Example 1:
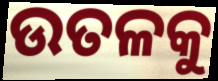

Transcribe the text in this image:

ଉତଳକୁ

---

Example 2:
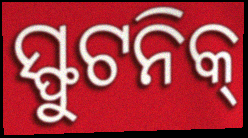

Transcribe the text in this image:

ସ୍ଫୁଟନିକ୍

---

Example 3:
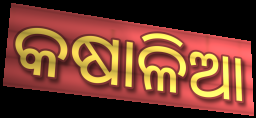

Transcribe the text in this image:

କଷାଳିଆ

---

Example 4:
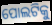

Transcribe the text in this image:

ପୋଲଟିକୁ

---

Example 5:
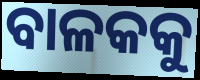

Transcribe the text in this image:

ବାଳକକୁ